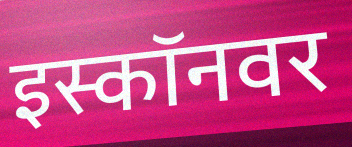
इस्कॉनवर